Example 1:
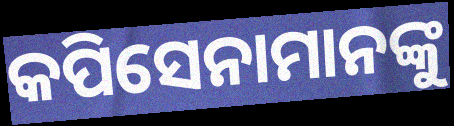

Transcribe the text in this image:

କପିସେନାମାନଙ୍କୁ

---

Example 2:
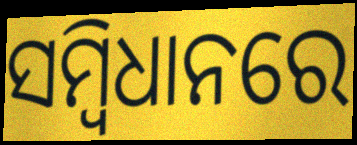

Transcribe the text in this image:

ସମ୍ବିଧାନରେ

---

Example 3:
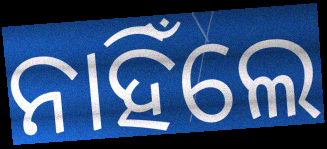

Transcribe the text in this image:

ନାହିଁଲେ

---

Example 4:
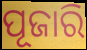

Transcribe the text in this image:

ପୂଜାରି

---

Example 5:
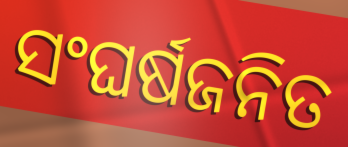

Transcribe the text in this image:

ସଂଘର୍ଷଜନିତ